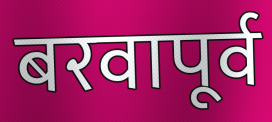
बरवापूर्व